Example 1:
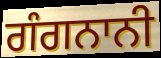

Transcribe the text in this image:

ਗੰਗਨਾਨੀ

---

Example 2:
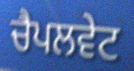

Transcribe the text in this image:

ਚੈਪਲਵੇਟ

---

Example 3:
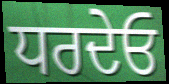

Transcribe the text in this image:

ਧਰਦੇਓ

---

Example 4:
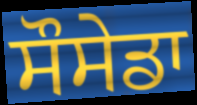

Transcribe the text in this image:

ਸੌਸੇਡਾ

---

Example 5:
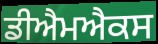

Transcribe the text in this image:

ਡੀਐਮਐਕਸ